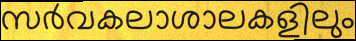
സർവകലാശാലകളിലും